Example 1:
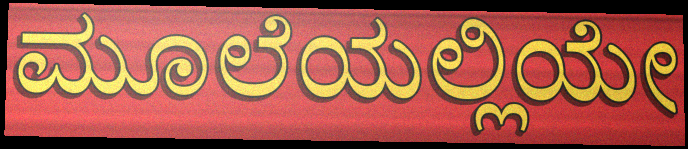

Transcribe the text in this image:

ಮೂಲೆಯಲ್ಲಿಯೇ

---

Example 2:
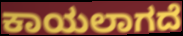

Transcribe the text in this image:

ಕಾಯಲಾಗದೆ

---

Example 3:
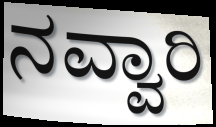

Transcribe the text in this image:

ನವ್ವಾರಿ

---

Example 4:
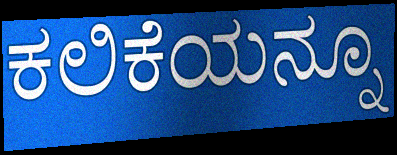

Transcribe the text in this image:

ಕಲಿಕೆಯನ್ನೂ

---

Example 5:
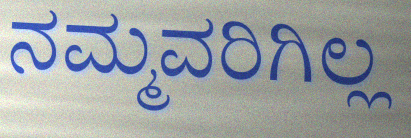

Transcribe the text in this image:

ನಮ್ಮವರಿಗಿಲ್ಲ